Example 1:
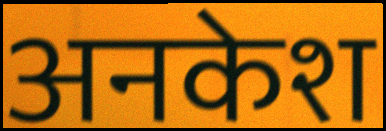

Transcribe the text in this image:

अनकेश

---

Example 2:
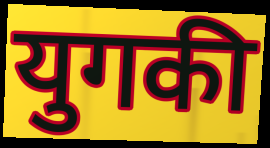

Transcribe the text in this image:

युगकी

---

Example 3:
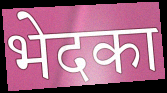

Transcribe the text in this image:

भेदका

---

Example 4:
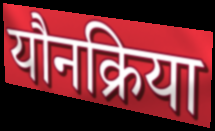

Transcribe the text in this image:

यौनक्रिया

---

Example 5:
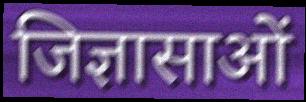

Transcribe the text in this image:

जिज्ञासाओं